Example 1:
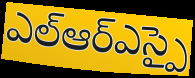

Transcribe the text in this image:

ఎల్ఆర్ఎస్పై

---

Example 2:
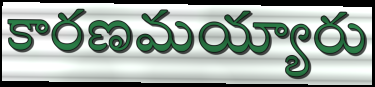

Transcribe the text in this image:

కారణమయ్యారు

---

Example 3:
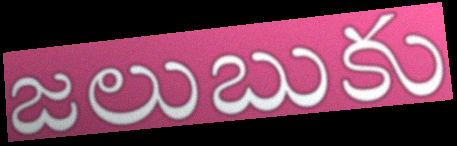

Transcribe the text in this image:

జలుబుకు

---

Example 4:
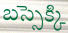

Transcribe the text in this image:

బస్సెక్కి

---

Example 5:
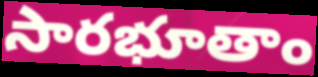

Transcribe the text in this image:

సారభూతాం